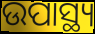
ଉପାସ୍ଥ୍ୟ